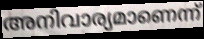
അനിവാര്യമാണെന്ന്